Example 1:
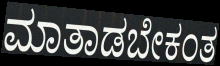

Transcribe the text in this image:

ಮಾತಾಡಬೇಕಂತ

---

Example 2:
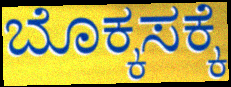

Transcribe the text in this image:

ಬೊಕ್ಕಸಕ್ಕೆ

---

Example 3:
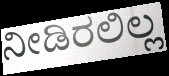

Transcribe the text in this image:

ನೀಡಿರಲಿಲ್ಲ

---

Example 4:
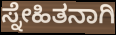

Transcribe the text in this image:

ಸ್ನೇಹಿತನಾಗಿ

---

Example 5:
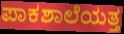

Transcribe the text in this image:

ಪಾಕಶಾಲೆಯತ್ತ